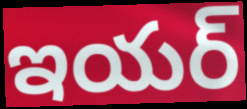
ఇయర్